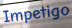
Impetigo